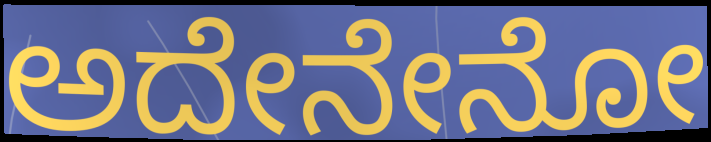
ಅದೇನೇನೋ